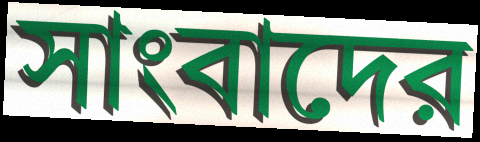
সাংবাদের